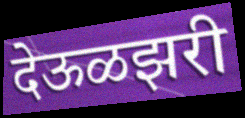
देऊळझरी